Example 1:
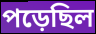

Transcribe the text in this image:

পড়েছিল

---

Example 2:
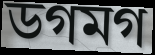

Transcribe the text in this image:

ডগমগ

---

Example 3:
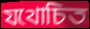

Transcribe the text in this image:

যথোচিত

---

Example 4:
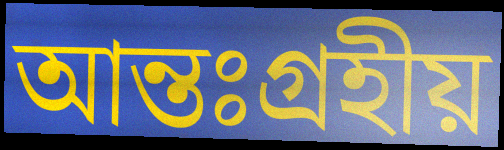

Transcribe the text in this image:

আন্তঃগ্রহীয়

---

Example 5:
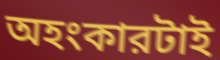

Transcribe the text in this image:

অহংকারটাই